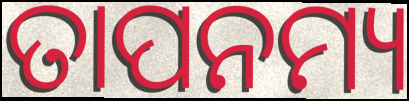
ତାପନମ୍ୟ